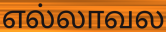
எல்லாவல